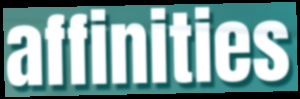
affinities